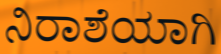
ನಿರಾಶೆಯಾಗಿ